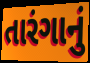
તારંગાનું